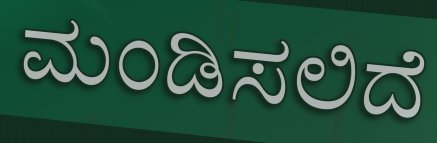
ಮಂಡಿಸಲಿದೆ